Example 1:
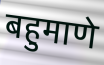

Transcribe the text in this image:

बहुमाणे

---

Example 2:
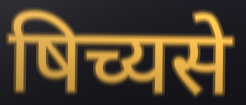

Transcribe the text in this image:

षिच्यसे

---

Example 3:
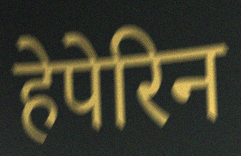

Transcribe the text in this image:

हेपेरिन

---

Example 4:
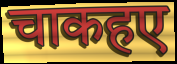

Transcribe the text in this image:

चाकहए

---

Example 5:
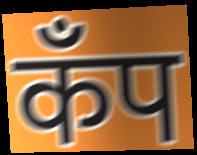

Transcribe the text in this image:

कॅंप